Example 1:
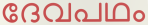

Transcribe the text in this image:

ദേവപഥം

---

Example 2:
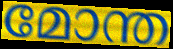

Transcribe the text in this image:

മോന്ത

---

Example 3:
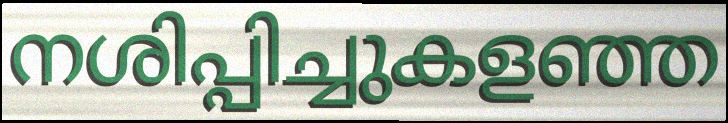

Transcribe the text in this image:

നശിപ്പിച്ചുകളഞ്ഞ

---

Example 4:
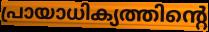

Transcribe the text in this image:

പ്രായാധിക്യത്തിന്റെ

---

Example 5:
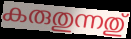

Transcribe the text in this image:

കരുതുന്നതു്